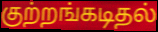
குற்றங்கடிதல்